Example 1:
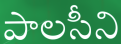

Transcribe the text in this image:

పాలసీని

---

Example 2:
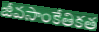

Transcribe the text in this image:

జీవసాంకేతికత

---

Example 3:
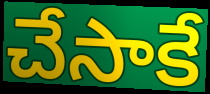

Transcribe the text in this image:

చేసాకే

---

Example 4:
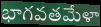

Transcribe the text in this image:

భాగవతమేళా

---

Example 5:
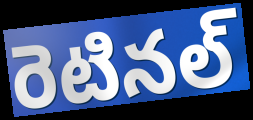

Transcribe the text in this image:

రెటినల్